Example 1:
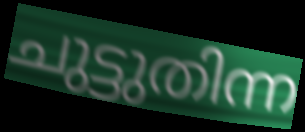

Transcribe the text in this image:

ചുട്ടുതിന്ന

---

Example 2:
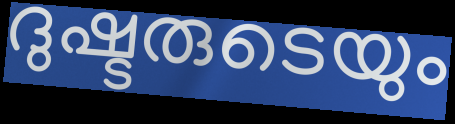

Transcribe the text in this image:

ദുഷ്ടരുടെയും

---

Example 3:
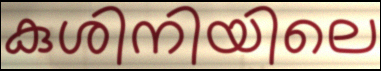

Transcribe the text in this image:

കുശിനിയിലെ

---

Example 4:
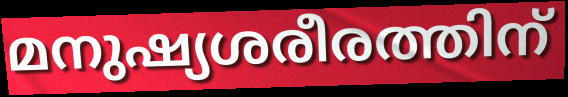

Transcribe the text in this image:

മനുഷ്യശരീരത്തിന്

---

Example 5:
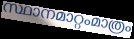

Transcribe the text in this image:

സ്ഥാനമാറ്റംമാത്രം